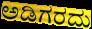
ಅಡಿಗರದು